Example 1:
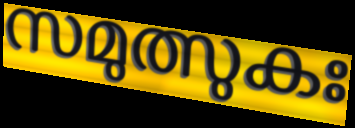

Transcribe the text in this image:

സമുത്സുകഃ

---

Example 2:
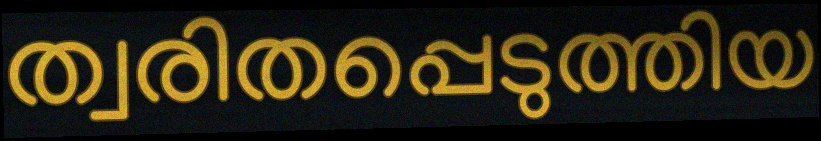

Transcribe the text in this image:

ത്വരിതപ്പെടുത്തിയ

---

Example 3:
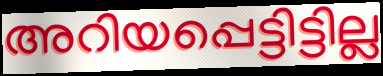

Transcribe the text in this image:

അറിയപ്പെട്ടിട്ടില്ല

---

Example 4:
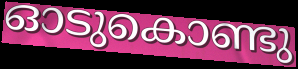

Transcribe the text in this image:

ഓടുകൊണ്ടു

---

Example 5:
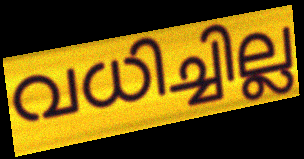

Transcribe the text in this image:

വധിച്ചില്ല